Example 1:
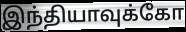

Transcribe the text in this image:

இந்தியாவுக்கோ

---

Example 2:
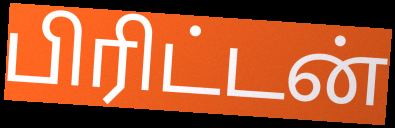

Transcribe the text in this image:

பிரிட்டன்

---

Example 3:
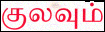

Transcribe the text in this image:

குலவும்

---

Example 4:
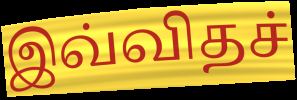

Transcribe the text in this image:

இவ்விதச்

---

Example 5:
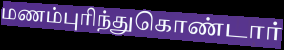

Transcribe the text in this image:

மணம்புரிந்துகொண்டார்